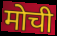
मोची